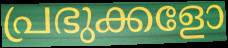
പ്രഭുക്കളോ